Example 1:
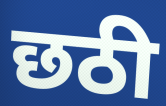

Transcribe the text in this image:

छठी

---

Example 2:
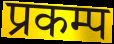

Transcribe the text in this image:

प्रकम्प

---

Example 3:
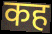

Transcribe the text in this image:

कह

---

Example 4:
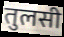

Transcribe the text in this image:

तुलसी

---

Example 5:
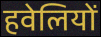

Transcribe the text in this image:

हवेलियों